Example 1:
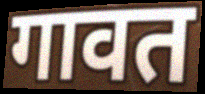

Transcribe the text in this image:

गावत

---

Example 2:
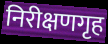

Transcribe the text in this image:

निरीक्षणगृह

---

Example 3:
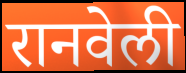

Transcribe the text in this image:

रानवेली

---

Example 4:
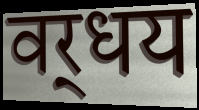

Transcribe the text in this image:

वर्धय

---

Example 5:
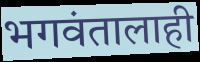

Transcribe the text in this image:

भगवंतालाही